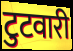
टुटवारी